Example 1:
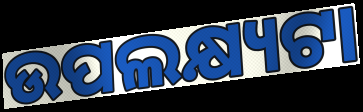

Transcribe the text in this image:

ଉପଲକ୍ଷ୍ୟଟା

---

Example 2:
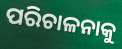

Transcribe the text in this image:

ପରିଚାଳନାକୁ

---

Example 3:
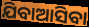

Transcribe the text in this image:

ଯିବାଆସିବା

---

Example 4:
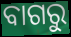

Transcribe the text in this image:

ବାଗରୁ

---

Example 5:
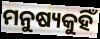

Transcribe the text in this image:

ମନୁଷ୍ୟକୁହିଁ